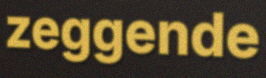
zeggende